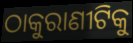
ଠାକୁରାଣୀଟିକୁ